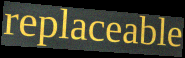
replaceable